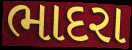
ભાદરા